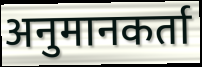
अनुमानकर्ता